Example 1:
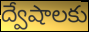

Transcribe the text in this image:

ద్వేషాలకు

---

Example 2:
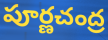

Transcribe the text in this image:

పూర్ణచంద్ర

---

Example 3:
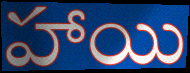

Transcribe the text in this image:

హాయి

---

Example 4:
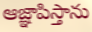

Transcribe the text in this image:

ఆజ్ఞాపిస్తాను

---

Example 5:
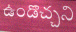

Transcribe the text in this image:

ఉండొచ్చని